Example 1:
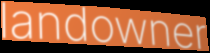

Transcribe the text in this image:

landowner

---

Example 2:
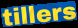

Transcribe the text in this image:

tillers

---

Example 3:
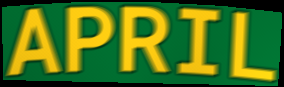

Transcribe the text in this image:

APRIL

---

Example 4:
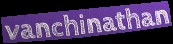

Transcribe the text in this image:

vanchinathan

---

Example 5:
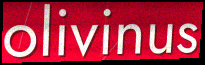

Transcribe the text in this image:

olivinus